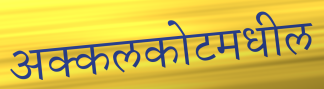
अक्कलकोटमधील